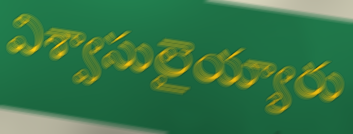
విశ్వాసులైయ్యారు